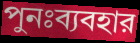
পুনঃব্যবহার